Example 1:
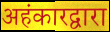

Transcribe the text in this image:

अहंकारद्वारा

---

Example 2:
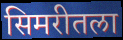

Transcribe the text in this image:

सिमरीतला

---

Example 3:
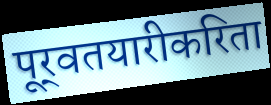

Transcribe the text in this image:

पूर्वतयारीकरिता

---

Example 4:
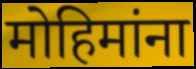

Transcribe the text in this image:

मोहिमांना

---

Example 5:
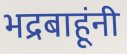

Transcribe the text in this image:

भद्रबाहूंनी